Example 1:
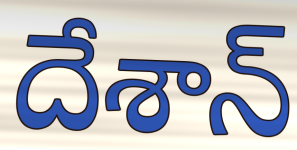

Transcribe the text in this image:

దేశాన్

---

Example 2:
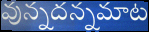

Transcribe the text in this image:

వున్నదన్నమాట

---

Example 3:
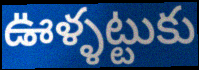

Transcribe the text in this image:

ఊళ్ళట్టుకు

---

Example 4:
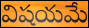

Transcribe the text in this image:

విషయమే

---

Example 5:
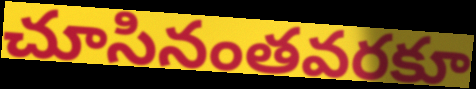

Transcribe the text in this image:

చూసినంతవరకూ